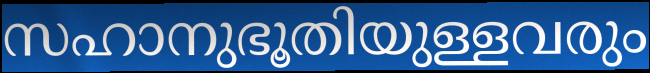
സഹാനുഭൂതിയുള്ളവരും